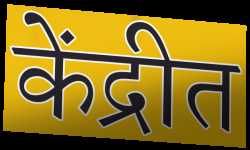
केंद्रीत